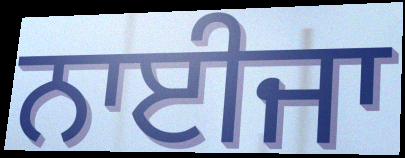
ਨਾਈਜਾ